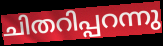
ചിതറിപ്പറന്നു